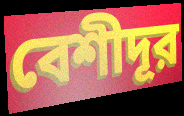
বেশীদূর